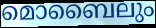
മൊബൈലും